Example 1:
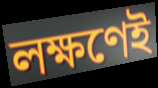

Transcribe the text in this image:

লক্ষণেই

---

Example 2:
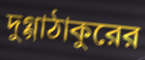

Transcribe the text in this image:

দুগ্গাঠাকুরের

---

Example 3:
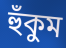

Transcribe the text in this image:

হুঁকুম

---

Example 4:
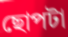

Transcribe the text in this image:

ছোপটা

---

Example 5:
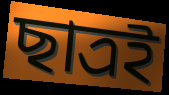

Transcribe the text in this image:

ছাত্রই